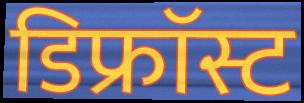
डिफ्रॉस्ट